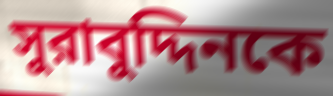
সুরাবুদ্দিনকে